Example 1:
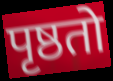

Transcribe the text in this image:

पृष्ठतो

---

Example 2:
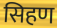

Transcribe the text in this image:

सिहण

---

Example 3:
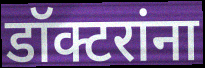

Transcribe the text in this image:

डॉक्टरांना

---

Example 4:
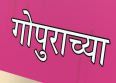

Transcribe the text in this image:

गोपुराच्या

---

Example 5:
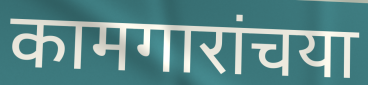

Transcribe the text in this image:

कामगारांचया